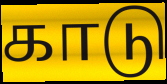
காடு